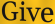
Give